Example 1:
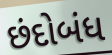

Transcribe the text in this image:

છંદોબંધ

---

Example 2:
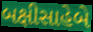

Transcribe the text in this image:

બક્ષીસાહેબે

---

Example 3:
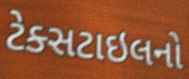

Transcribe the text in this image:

ટેક્સટાઇલનો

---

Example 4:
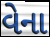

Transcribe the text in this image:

વેના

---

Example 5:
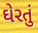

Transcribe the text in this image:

ઘેરતું